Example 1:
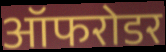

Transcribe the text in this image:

ऑफरोडर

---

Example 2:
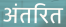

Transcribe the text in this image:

अंतरित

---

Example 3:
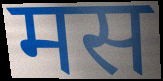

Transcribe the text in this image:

मस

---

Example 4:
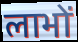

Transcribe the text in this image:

लाभों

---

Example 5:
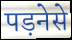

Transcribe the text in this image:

पड़नेसे